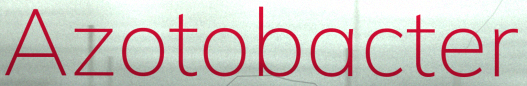
Azotobacter